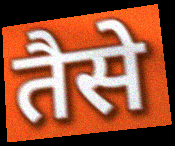
तैसे